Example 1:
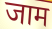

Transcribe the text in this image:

जाम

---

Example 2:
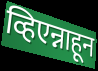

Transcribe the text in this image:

व्हिएन्नाहून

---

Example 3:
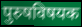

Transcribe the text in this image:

पुरुषविषयक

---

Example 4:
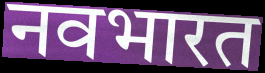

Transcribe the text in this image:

नवभारत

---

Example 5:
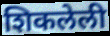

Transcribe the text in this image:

शिकलेली